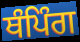
ਥੰਪਿੰਗ